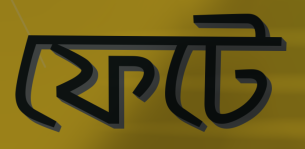
ফেটে